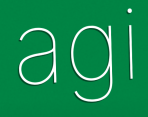
agi